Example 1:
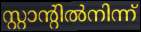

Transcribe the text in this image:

സ്റ്റാന്റിൽനിന്ന്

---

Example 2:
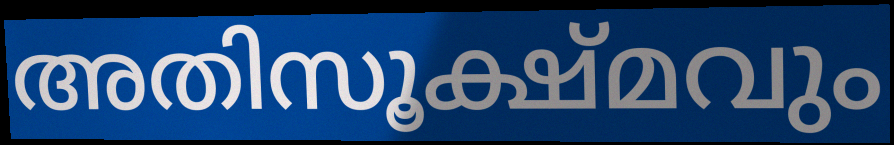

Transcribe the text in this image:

അതിസൂക്ഷ്മവും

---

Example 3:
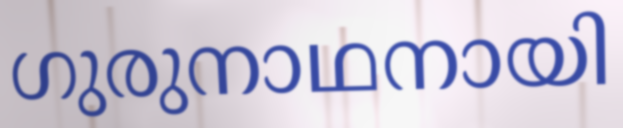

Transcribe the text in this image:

ഗുരുനാഥനായി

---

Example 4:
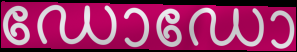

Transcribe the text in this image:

ഡോഡോ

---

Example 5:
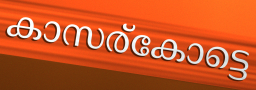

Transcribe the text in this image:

കാസര്കോട്ടെ